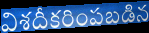
విశదీకరింపబడిన